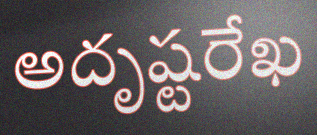
అదృష్టరేఖ